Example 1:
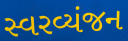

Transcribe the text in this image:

સ્વરવ્યંજન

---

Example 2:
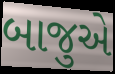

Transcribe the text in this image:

બાજુએ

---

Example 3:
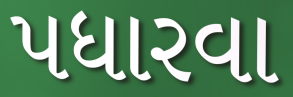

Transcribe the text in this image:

પધારવા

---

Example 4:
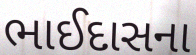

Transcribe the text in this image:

ભાઈદાસના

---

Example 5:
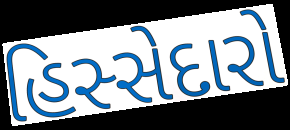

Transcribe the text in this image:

હિસ્સેદારો